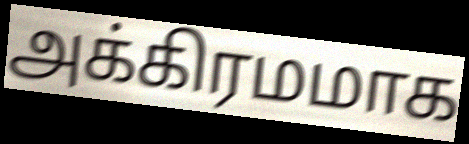
அக்கிரமமாக